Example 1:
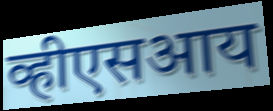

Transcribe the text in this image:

व्हीएसआय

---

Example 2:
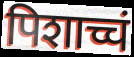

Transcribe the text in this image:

पिशाच्चं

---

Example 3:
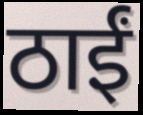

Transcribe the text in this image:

ठाईं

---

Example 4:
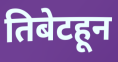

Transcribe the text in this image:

तिबेटहून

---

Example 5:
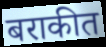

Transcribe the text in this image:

बराकीत